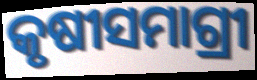
କୃଷୀସମାଗ୍ରୀ